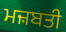
ਮਜ਼ਬਤੀ